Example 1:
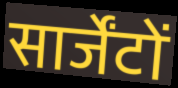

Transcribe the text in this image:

सार्जेंटों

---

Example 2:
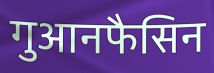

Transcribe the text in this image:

गुआनफैसिन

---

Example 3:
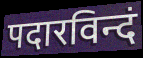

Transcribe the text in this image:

पदारविन्दं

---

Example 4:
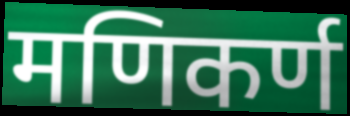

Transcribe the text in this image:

मणिकर्ण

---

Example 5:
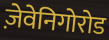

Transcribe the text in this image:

ज़ेवेनिगोरोड